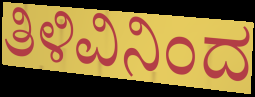
ತಿಳಿವಿನಿಂದ